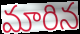
మారిన